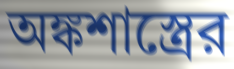
অঙ্কশাস্ত্রের